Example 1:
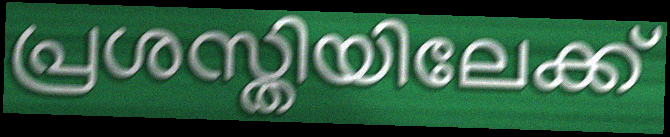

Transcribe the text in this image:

പ്രശസ്തിയിലേക്ക്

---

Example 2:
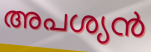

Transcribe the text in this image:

അപശ്യൻ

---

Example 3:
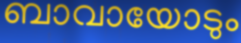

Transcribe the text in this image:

ബാവായോടും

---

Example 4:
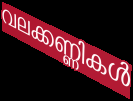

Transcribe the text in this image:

വലക്കണ്ണികൾ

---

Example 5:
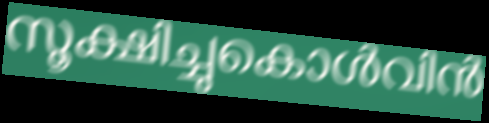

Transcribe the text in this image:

സൂക്ഷിച്ചുകൊൾവിൻ